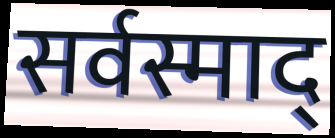
सर्वस्माद्